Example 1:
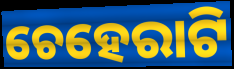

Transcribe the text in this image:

ଚେହେରାଟି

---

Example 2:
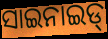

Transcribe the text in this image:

ସାଇନାଇଡ୍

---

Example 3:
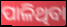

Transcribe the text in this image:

ପାଳିଥିବା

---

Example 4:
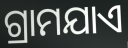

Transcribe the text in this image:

ଗ୍ରାମଯାଏ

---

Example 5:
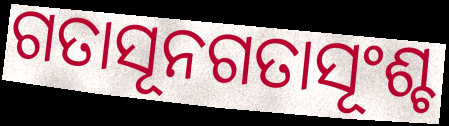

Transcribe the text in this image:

ଗତାସୂନଗତାସୂଂଶ୍ଚ